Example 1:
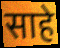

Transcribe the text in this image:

साहे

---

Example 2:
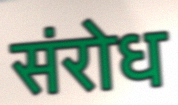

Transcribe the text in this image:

संरोध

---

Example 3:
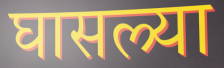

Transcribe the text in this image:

घासल्या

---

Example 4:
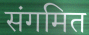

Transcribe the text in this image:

संगमित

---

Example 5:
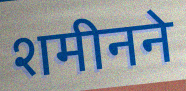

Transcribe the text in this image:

शमीनने